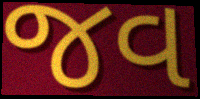
જવ